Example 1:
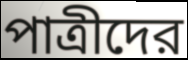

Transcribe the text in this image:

পাত্রীদের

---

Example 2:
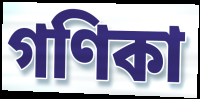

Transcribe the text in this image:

গণিকা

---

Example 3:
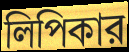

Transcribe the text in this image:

লিপিকার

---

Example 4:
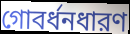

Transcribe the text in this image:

গোবর্ধনধারণ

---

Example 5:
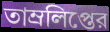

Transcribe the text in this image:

তাম্রলিপ্তের